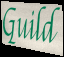
Guild